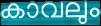
കാവലും